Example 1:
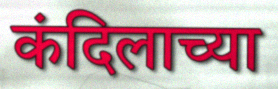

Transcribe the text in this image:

कंदिलाच्या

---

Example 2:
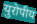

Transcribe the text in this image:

युरोपीय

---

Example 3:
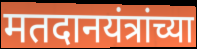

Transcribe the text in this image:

मतदानयंत्रांच्या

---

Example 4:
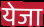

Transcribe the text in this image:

येजा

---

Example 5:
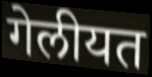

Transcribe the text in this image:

गेलीयत